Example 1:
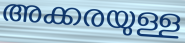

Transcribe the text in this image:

അക്കരയുള്ള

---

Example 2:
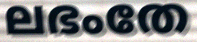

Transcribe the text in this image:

ലഭംതേ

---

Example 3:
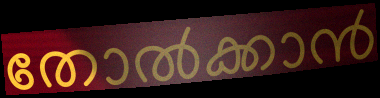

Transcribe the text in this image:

തോൽക്കാൻ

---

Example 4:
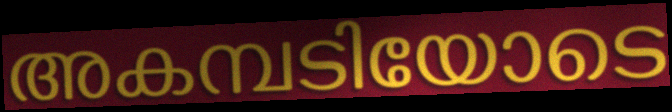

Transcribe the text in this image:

അകമ്പടിയോടെ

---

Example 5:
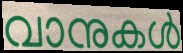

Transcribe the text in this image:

വാനുകൾ